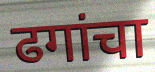
ढगांचा